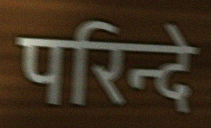
परिन्दे